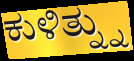
ಕುಳಿತ್ನ್ನು